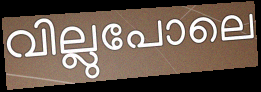
വില്ലുപോലെ